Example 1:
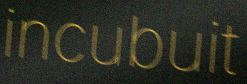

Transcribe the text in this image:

incubuit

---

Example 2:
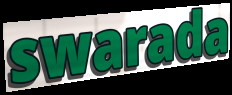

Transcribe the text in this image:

swarada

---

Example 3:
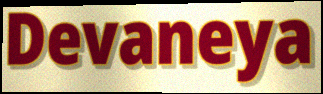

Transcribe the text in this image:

Devaneya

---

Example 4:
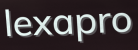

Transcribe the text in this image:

lexapro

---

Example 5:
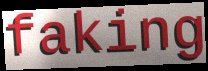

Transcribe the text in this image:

faking